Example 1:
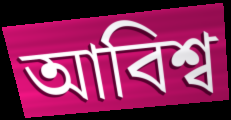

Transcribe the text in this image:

আবিশ্ব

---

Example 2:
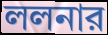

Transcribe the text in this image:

ললনার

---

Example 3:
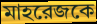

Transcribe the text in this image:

মাহরেজকে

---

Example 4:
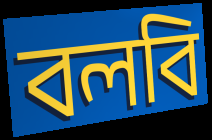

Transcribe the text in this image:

বলবি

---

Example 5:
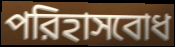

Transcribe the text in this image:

পরিহাসবোধ